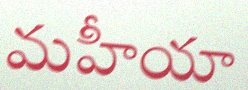
మహీయా